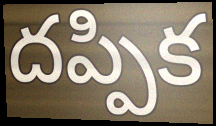
దప్పిక